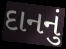
દાનનું